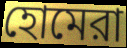
হোমেরা